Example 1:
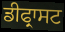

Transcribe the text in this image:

ਡੀਫ੍ਰਾਸਟ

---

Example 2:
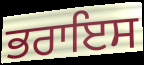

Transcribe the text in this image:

ਭਰਾਇਸ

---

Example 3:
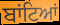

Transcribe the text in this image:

ਬਾਂਟਿਆਂ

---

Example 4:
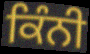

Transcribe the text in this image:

ਕਿੰਨੀ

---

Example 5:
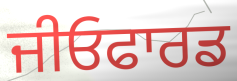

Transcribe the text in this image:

ਜੀਓਫਾਰਡ